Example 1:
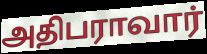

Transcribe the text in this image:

அதிபராவார்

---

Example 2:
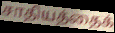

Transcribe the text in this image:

சாதியத்தைக்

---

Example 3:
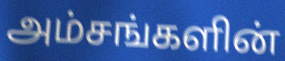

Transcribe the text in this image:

அம்சங்களின்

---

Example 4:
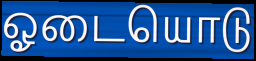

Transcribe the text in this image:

ஓடையொடு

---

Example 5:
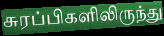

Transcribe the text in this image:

சுரப்பிகளிலிருந்து